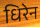
धिरेन